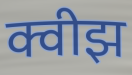
क्वीझ